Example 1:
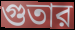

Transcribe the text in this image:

গুতার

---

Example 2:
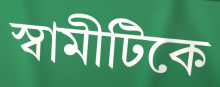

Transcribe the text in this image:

স্বামীটিকে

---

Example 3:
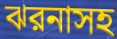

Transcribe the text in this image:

ঝরনাসহ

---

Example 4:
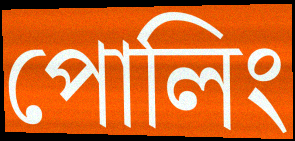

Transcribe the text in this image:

পোলিং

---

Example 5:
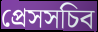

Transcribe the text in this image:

প্রেসসচিব